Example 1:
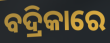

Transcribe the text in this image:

ବଦ୍ରିକାରେ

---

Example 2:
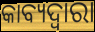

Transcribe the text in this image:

କାବ୍ୟଦ୍ୱାରା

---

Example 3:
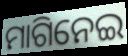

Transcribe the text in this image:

ମାଗିନେଇ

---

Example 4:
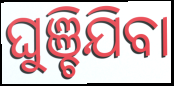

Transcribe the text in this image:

ଘୁଞ୍ଚିଯିବା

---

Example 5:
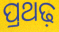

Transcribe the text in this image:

ପ୍ରଥଢ଼